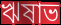
ঋষাভ